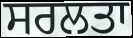
ਸਰਲਤਾ